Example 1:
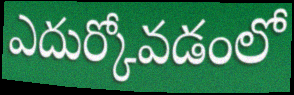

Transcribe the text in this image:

ఎదుర్కోవడంలో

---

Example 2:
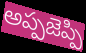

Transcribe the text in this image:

అప్పజెప్పి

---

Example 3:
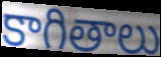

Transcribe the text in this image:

కాగితాలు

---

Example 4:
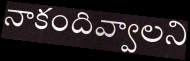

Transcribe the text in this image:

నాకందివ్వాలని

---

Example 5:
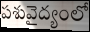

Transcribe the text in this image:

పశువైద్యంలో